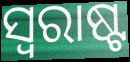
ସ୍ୱରାଷ୍ଟ